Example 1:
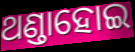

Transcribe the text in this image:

ଥଣ୍ଡାହୋଇ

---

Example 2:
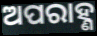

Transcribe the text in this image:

ଅପରାହ୍ଣ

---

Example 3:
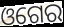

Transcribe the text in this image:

ଓଗେର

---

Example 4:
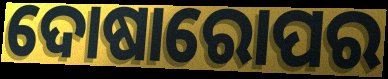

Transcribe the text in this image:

ଦୋଷାରୋପର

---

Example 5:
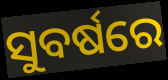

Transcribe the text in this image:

ସୁବର୍ଷରେ